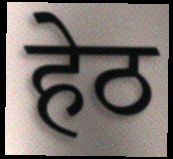
हेठ